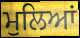
ਮੁਲਿਆਂ